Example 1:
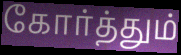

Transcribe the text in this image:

கோர்த்தும்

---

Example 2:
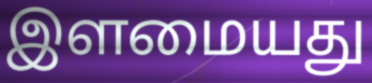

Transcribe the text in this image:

இளமையது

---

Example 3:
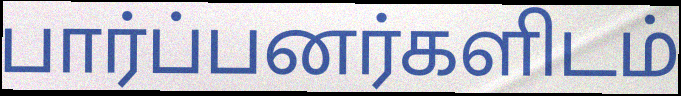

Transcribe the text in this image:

பார்ப்பனர்களிடம்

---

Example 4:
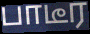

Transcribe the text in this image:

பாடீர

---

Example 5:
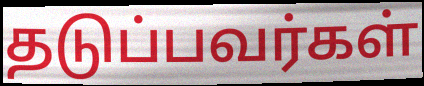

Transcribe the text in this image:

தடுப்பவர்கள்